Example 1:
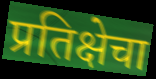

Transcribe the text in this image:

प्रतिक्षेचा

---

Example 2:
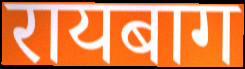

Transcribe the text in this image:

रायबाग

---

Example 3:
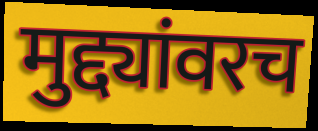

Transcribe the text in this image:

मुद्द्यांवरच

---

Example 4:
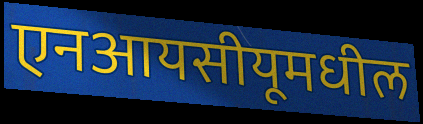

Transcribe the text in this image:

एनआयसीयूमधील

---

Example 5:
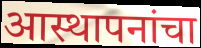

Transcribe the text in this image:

आस्थापनांचा